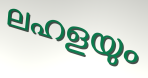
ലഹളയും